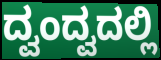
ದ್ವಂದ್ವದಲ್ಲಿ